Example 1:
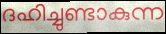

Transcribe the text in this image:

ദഹിച്ചുണ്ടാകുന്ന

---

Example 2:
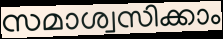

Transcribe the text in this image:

സമാശ്വസിക്കാം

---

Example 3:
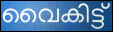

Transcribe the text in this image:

വൈകിട്ട്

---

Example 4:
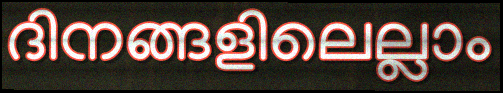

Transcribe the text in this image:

ദിനങ്ങളിലെല്ലാം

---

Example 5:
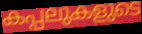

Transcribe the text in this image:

കപ്പലുകളുടെ